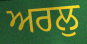
ਅਰਲੁ